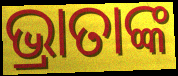
ଭ୍ରାତାଙ୍କ